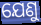
ଯେଣୁ